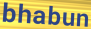
bhabun